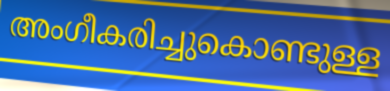
അംഗീകരിച്ചുകൊണ്ടുള്ള